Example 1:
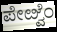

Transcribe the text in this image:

ಪೇೞ್ವೆಂ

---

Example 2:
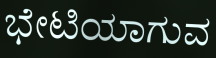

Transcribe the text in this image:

ಭೇಟಿಯಾಗುವ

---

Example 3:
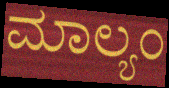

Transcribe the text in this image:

ಮಾಲ್ಯಂ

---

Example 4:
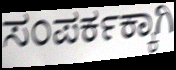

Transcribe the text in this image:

ಸಂಪರ್ಕಕ್ಕಾಗಿ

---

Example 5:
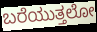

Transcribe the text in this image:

ಬರೆಯುತ್ತಲೋ